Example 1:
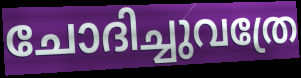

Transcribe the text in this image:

ചോദിച്ചുവത്രേ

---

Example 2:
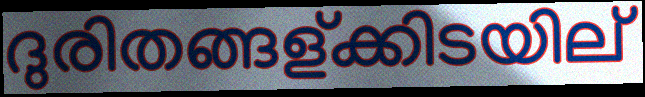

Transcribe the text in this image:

ദുരിതങ്ങള്ക്കിടയില്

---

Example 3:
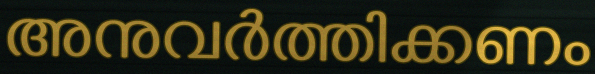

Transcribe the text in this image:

അനുവർത്തിക്കണം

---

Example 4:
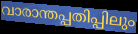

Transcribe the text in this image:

വാരാന്തപ്പതിപ്പിലും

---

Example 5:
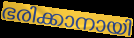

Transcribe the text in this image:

ഭരിക്കാനായി